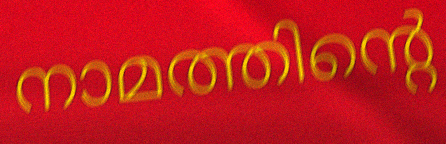
നാമത്തിന്റെ